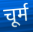
चूर्म